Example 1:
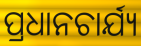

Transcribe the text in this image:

ପ୍ରଧାନଚାର୍ଯ୍ୟ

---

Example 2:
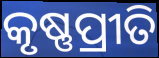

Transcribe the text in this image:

କୃଷ୍ଣପ୍ରୀତି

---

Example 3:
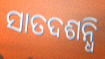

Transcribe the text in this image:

ସାତଦଶନ୍ଧି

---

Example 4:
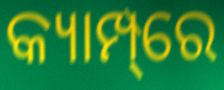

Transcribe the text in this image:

କ୍ୟାମ୍ପ୍‌ରେ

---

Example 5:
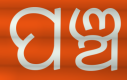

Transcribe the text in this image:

ପଞ୍ଚ